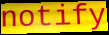
notify